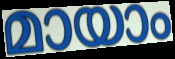
മായാം